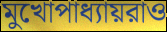
মুখোপাধ্যায়রাও